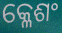
କ୍ଳେଶଂ